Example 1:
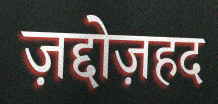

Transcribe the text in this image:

ज़द्दोज़हद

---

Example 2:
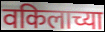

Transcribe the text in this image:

वकिलाच्या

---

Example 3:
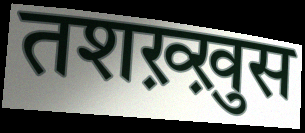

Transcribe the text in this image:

तशख़्ख़ुस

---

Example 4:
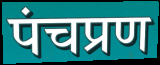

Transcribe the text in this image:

पंचप्रण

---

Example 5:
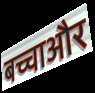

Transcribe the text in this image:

बच्चाऔर